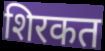
शिरकत